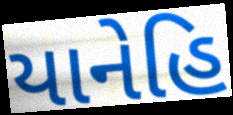
યાનેહિ